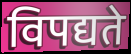
विपद्यते